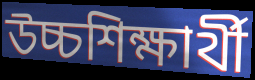
উচ্চশিক্ষার্থী